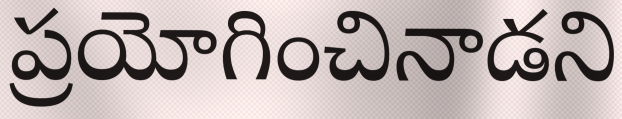
ప్రయోగించినాడని